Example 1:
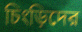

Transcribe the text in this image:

চিংড়িদের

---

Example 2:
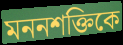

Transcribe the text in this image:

মননশক্তিকে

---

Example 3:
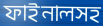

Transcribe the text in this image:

ফাইনালসহ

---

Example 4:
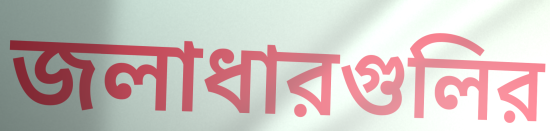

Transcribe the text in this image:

জলাধারগুলির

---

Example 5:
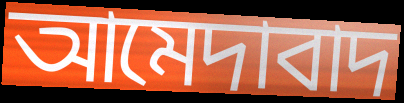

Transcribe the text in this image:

আমেদাবাদ